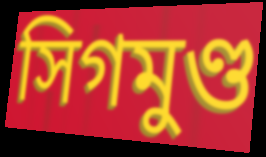
সিগমুণ্ড